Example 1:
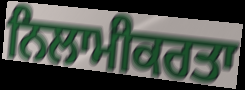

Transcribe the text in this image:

ਨਿਲਾਮੀਕਰਤਾ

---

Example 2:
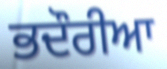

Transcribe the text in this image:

ਭਦੌਰੀਆ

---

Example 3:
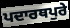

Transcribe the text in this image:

ਪਦਾਰਥਪੁਰੇ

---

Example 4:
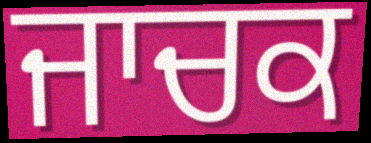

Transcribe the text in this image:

ਜਾਚਕ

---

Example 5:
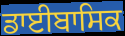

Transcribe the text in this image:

ਡਾਈਬਾਸਿਕ